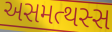
અસમત્થસ્સ